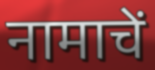
नामाचें